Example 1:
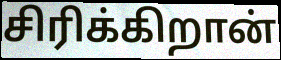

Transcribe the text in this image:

சிரிக்கிறான்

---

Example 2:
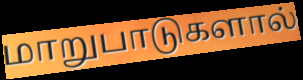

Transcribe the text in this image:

மாறுபாடுகளால்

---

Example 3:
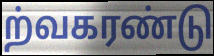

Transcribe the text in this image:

ற்வகரண்டு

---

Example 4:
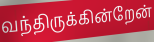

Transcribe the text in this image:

வந்திருக்கின்றேன்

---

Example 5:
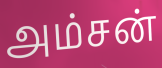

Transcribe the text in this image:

அம்சன்